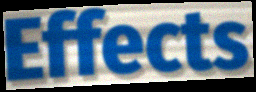
Effects